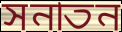
সনাতন